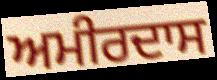
ਅਮੀਰਦਾਸ